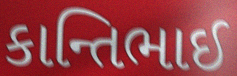
કાન્તિભાઈ